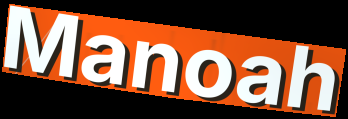
Manoah